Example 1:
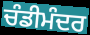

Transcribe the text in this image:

ਚੰਡੀਮੰਦਰ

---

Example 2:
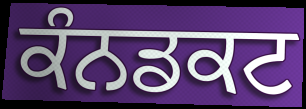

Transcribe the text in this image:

ਕੰਨਡਕਟ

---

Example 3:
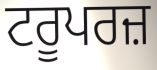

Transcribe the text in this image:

ਟਰੂਪਰਜ਼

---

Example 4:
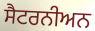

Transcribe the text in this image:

ਸੈਟਰਨੀਅਨ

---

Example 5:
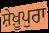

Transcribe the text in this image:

ਸ਼ੇਖ਼ੂਪੁਰਾ